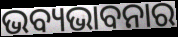
ଭବ୍ୟଭାବନାର